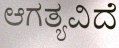
ಆಗತ್ಯವಿದೆ